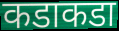
कडाकडा